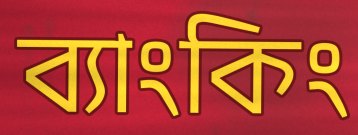
ব্যাংকিং